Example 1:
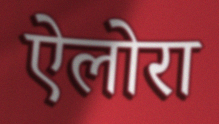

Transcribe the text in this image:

ऐलोरा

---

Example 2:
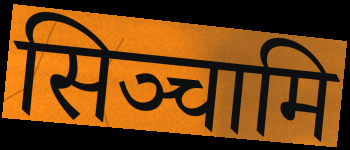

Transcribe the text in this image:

सिञ्चामि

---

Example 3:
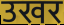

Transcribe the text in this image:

उखर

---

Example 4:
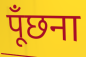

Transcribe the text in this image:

पूँछना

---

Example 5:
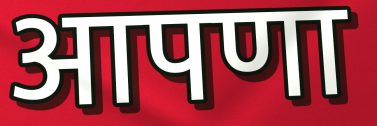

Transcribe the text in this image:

आपणा